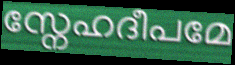
സ്നേഹദീപമേ